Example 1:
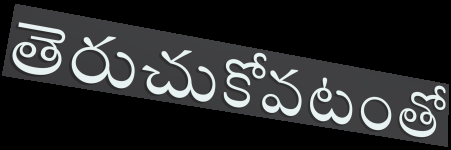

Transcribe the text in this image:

తెరుచుకోవటంతో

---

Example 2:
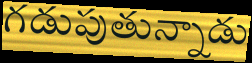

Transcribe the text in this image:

గడుపుతున్నాడు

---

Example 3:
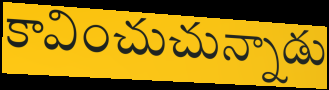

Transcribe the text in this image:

కావించుచున్నాడు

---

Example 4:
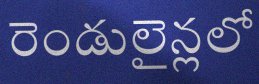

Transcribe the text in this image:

రెండులైన్లలో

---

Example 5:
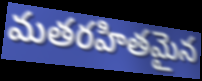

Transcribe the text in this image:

మతరహితమైన